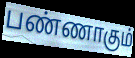
பண்ணாகும்